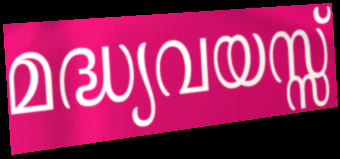
മദ്ധ്യവയസ്സ്